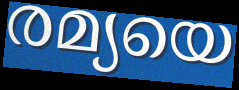
രമ്യയെ